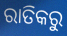
ରାତିକରୁ